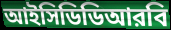
আইসিডিডিআরবি